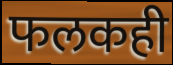
फलकही